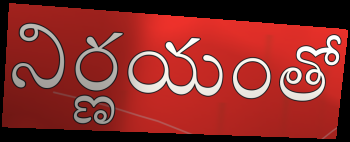
నిర్ణయంతో